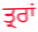
ਤ੍ਰਰਾਂ